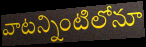
వాటన్నింటిలోనూ